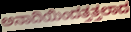
ಅನಾದಿಯಿಂದತ್ತತ್ತಲಾದ